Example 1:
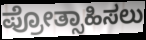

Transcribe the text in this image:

ಪ್ರೋತ್ಸಾಹಿಸಲು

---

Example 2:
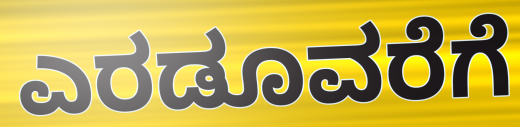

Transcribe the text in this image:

ಎರಡೂವರೆಗೆ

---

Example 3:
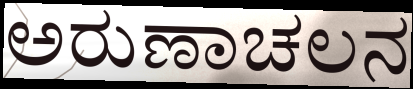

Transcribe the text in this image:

ಅರುಣಾಚಲನ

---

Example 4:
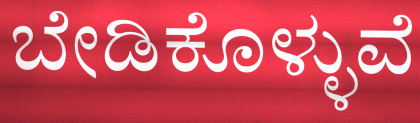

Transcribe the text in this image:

ಬೇಡಿಕೊಳ್ಳುವೆ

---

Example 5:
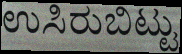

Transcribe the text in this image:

ಉಸಿರುಬಿಟ್ಟು